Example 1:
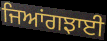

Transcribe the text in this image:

ਜਿਆਂਗਝਾਈ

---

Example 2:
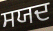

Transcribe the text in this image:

ਸਯਦ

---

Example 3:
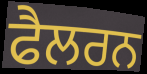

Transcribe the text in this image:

ਫੈਲਰਨ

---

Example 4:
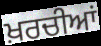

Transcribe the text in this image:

ਖ਼ਰਚੀਆਂ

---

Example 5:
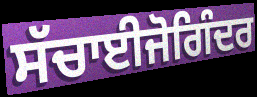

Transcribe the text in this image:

ਸੱਚਾਈਜੋਗਿੰਦਰ